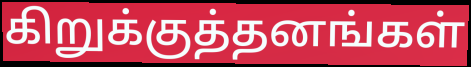
கிறுக்குத்தனங்கள்